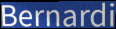
Bernardi